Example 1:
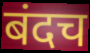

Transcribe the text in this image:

बंदच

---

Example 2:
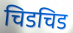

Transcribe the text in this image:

चिडचिड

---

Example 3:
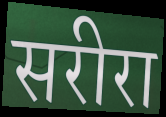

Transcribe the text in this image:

सरीरा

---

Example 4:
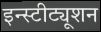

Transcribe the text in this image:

इन्स्टीट्यूशन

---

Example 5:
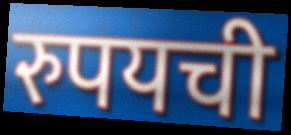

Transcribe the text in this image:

रुपयची